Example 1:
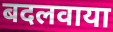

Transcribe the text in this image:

बदलवाया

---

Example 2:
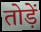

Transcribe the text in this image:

तोड़ें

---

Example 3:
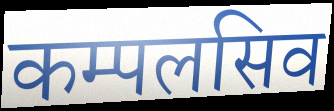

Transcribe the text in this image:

कम्पलसिव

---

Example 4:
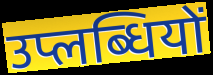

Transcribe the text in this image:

उप्लब्धियों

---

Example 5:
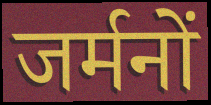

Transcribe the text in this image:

जर्मनों